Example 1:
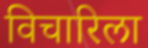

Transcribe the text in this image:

विचारिला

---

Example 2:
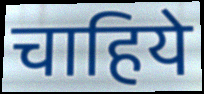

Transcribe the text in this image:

चाहिये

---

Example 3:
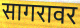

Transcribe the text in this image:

सागरावर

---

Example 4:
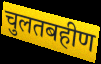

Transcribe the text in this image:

चुलतबहीण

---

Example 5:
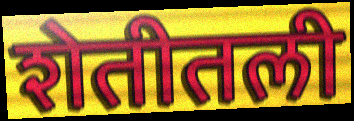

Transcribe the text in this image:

शेतीतली